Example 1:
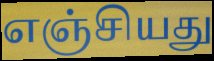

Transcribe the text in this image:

எஞ்சியது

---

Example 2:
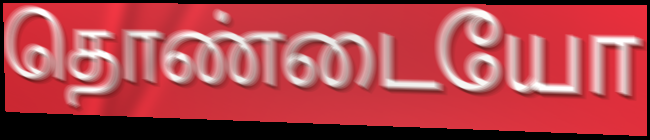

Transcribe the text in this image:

தொண்டையோ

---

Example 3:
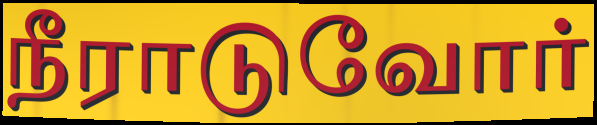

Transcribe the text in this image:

நீராடுவோர்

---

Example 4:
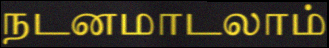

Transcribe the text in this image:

நடனமாடலாம்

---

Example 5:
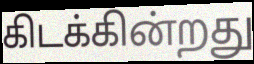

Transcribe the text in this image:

கிடக்கின்றது